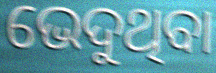
ଭେଦୁଥିବା